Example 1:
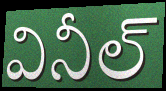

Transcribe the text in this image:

వినీల్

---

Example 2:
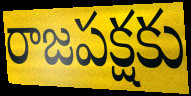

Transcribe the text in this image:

రాజపక్షకు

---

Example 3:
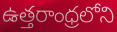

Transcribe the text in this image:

ఉత్తరాంధ్రలోని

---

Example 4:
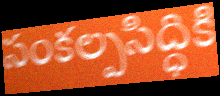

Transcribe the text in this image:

సంకల్పసిద్ధికి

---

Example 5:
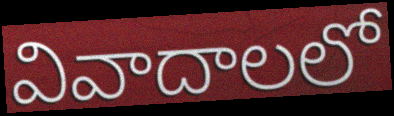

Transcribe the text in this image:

వివాదాలలో